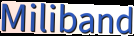
Miliband